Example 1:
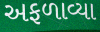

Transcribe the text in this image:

અફળાવ્યા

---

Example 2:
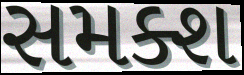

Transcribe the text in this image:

સમક્શ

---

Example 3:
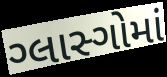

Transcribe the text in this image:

ગ્લાસ્ગોમાં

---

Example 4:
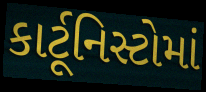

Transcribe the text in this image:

કાર્ટૂનિસ્ટોમાં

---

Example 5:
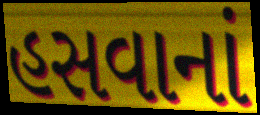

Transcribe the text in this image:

હસવાનાં